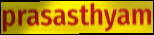
prasasthyam